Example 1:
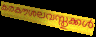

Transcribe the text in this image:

കരകൗശലവസ്തുക്കൾ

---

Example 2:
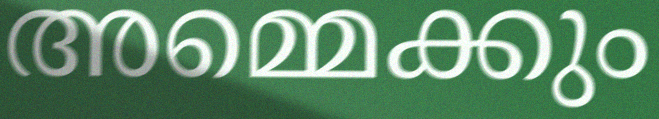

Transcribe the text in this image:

അമ്മെക്കും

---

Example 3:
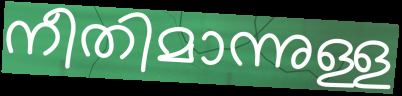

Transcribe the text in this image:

നീതിമാന്നുള്ള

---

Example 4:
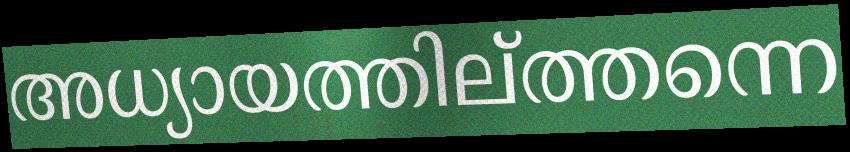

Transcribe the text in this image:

അധ്യായത്തില്ത്തന്നെ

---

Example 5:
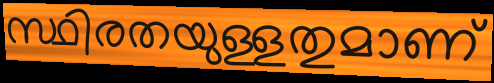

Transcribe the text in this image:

സ്ഥിരതയുള്ളതുമാണ്